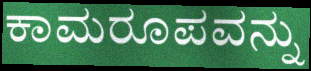
ಕಾಮರೂಪವನ್ನು